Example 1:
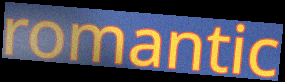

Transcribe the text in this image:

romantic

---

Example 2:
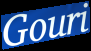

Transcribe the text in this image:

Gouri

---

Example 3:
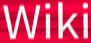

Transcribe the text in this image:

Wiki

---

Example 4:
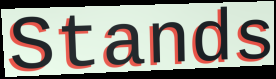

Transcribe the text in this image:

Stands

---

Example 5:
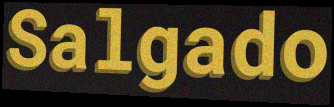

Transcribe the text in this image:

Salgado